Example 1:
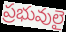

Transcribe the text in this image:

ప్రభువులై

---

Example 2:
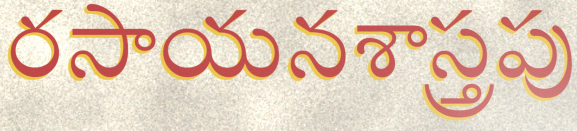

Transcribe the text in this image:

రసాయనశాస్త్రపు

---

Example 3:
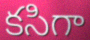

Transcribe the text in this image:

కసిగా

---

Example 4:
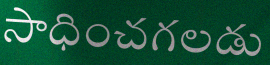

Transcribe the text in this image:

సాధించగలడు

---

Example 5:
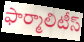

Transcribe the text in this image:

ఫార్మాలిటీస్